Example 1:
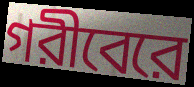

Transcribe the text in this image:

গরীবেরে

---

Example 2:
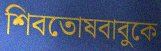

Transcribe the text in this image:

শিবতোষবাবুকে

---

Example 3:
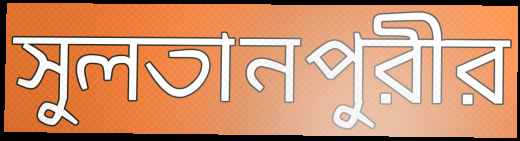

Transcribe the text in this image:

সুলতানপুরীর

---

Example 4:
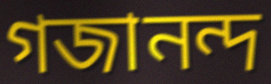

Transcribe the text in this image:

গজানন্দ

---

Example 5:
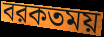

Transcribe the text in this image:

বরকতময়